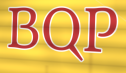
BQP